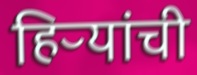
हिऱ्यांची